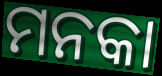
ମନକା